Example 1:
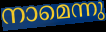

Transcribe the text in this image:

നാമെന്നു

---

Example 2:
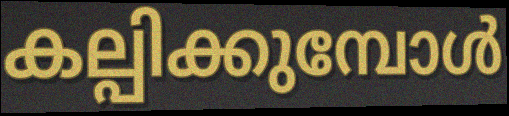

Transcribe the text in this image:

കല്പിക്കുമ്പോൾ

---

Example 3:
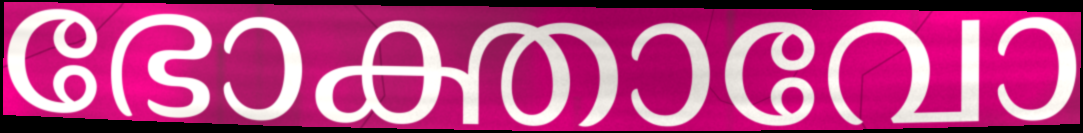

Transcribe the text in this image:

ഭോക്താവോ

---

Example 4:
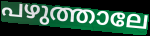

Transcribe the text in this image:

പഴുത്താലേ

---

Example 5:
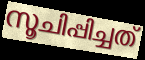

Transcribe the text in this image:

സൂചിപ്പിച്ചത്